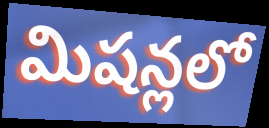
మిషన్లలో